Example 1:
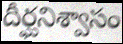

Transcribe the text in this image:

దీర్ఘనిశ్వాసం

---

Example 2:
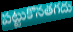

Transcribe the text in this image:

పట్టుకొనతగదు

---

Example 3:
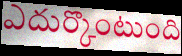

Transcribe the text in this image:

ఎదుర్కొంటుంది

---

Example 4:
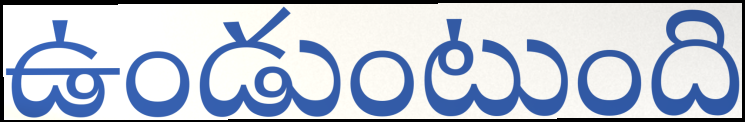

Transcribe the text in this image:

ఉండుంటుంది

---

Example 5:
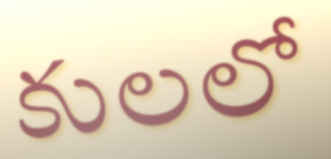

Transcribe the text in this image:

కులలో